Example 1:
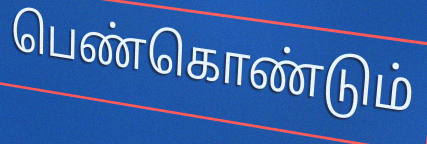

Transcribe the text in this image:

பெண்கொண்டும்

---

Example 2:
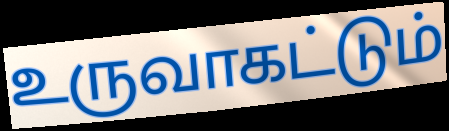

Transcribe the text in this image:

உருவாகட்டும்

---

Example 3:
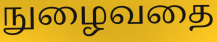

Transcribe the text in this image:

நுழைவதை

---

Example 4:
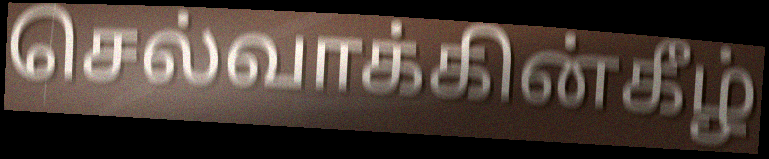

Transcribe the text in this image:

செல்வாக்கின்கீழ்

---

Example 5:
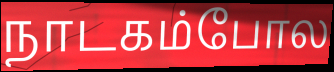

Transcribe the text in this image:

நாடகம்போல